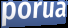
porua